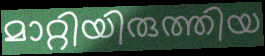
മാറ്റിയിരുത്തിയ